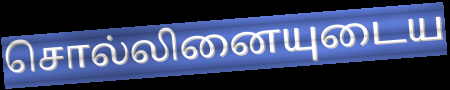
சொல்லினையுடைய